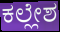
ಕಲ್ಲೇಶ